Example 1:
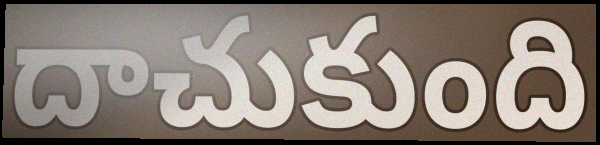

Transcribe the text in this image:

దాచుకుంది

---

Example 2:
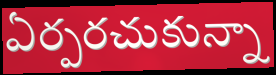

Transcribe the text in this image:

ఏర్పరచుకున్నా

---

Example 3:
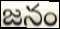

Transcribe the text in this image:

జనం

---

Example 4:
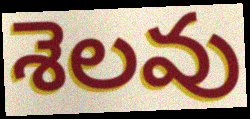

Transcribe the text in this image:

శెలవు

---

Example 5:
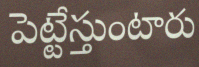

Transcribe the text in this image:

పెట్టేస్తుంటారు